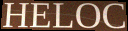
HELOC